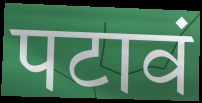
पटावं